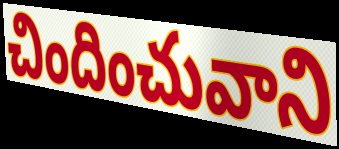
చిందించువాని